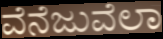
ವೆನೆಜುವೆಲಾ